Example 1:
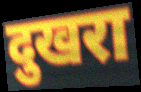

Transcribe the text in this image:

दुखरा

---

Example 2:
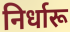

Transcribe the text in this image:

निर्धारू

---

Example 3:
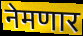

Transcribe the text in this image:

नेमणार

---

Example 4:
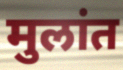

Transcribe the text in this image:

मुलांत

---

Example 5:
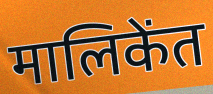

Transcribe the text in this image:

मालिकेंत